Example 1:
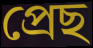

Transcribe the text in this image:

প্ৰেছ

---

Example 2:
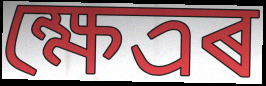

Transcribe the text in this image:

ক্ষেত্ৰৰ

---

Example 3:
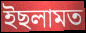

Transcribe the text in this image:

ইছলামত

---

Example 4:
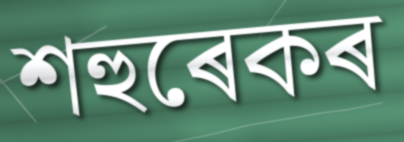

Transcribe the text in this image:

শহুৰেকৰ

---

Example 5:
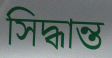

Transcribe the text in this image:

সিদ্ধান্ত